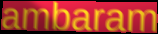
ambaram